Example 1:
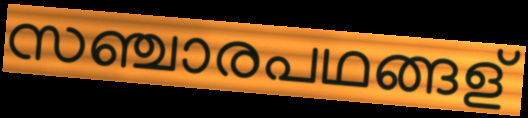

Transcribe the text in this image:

സഞ്ചാരപഥങ്ങള്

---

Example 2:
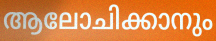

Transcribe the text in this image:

ആലോചിക്കാനും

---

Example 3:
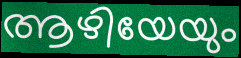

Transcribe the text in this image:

ആഴിയേയും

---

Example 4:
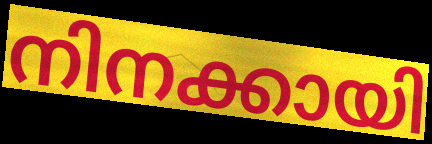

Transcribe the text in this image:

നിനക്കായി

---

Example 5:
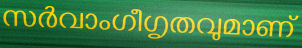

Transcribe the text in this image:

സർവാംഗീഗൃതവുമാണ്